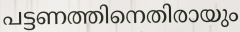
പട്ടണത്തിനെതിരായും